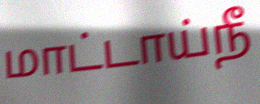
மாட்டாய்நீ